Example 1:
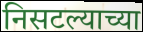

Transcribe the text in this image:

निसटल्याच्या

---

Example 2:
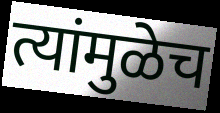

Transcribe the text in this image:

त्यांमुळेच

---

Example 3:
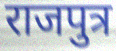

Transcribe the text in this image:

राजपुत्र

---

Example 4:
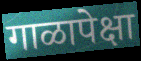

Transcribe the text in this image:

गाळापेक्षा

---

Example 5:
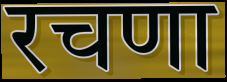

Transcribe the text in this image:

रचणा